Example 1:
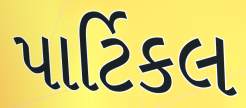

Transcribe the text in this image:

પાર્ટિકલ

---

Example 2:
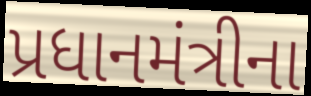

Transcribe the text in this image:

પ્રધાનમંત્રીના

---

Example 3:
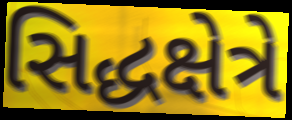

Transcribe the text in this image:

સિદ્ધક્ષેત્રે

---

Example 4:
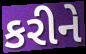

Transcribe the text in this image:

કરીને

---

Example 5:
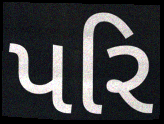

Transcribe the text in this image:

પરિ